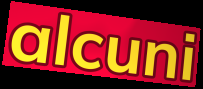
alcuni